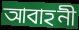
আবাহনী